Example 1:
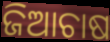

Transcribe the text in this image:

ଜିଆଚାଷ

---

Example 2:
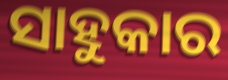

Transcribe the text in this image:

ସାହୁକାର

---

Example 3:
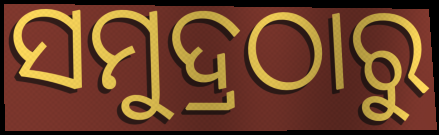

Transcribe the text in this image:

ସମୁଦ୍ରଠାରୁ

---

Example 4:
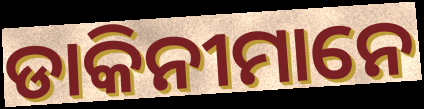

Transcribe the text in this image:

ଡାକିନୀମାନେ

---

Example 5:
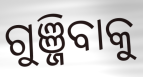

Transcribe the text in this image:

ଗୁଞ୍ଜିବାକୁ